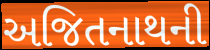
અજિતનાથની